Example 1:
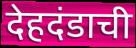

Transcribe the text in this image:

देहदंडाची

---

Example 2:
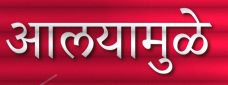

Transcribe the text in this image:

आलयामुळे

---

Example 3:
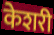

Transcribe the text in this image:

केशरी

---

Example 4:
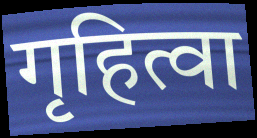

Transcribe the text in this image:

गृहित्वा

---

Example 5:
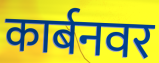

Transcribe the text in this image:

कार्बनवर